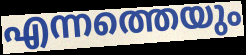
എന്നത്തെയും